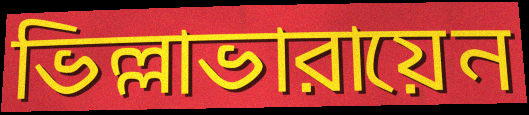
ভিল্লাভারায়েন